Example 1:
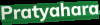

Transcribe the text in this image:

Pratyahara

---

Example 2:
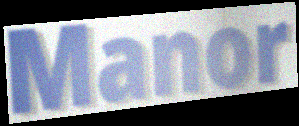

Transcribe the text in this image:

Manor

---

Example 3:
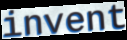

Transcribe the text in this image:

invent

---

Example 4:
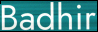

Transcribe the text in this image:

Badhir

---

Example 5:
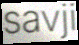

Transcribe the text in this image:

savji